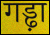
गड्ढ़ा